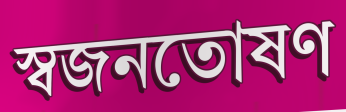
স্বজনতোষণ